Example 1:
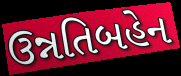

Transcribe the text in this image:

ઉન્નતિબહેન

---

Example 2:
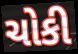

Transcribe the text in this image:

ચોકી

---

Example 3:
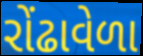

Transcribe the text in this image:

રોંઢાવેળા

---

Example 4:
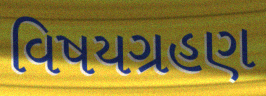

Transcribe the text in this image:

વિષયગ્રહણ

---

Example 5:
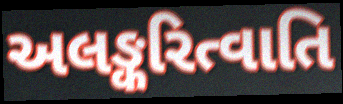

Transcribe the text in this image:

અલઙ્કરિત્વાતિ